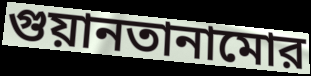
গুয়ানতানামোর